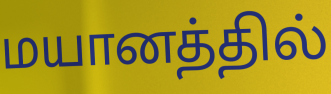
மயானத்தில்